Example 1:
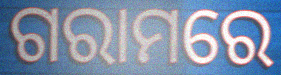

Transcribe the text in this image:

ଗରାମରେ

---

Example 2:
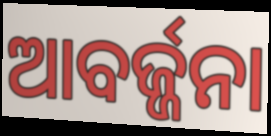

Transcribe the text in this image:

ଆବର୍ଜ୍ଜନା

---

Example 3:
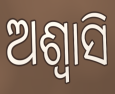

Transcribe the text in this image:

ଅଶ୍ୱାସି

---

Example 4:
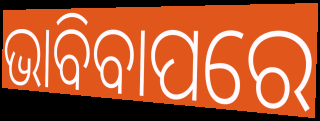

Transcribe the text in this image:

ଭାବିବାପରେ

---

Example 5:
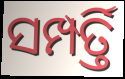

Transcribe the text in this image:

ସମ୍ପର୍ତ୍ତି